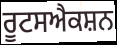
ਰੂਟਸਐਕਸ਼ਨ